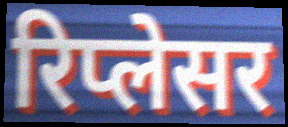
रिप्लेसर